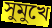
সুমুখে